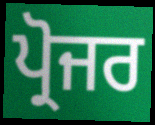
ਪ੍ਰੋਜਰ